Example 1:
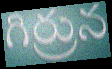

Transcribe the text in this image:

గిర్రున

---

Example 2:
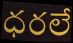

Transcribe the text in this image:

ధరలే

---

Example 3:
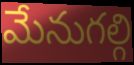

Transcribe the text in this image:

మేనుగల్గి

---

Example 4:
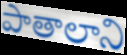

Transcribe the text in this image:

పాతాలాని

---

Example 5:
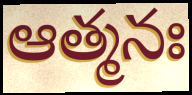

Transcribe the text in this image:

ఆత్మనః